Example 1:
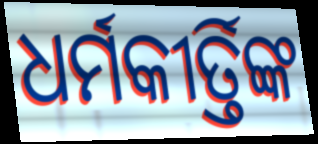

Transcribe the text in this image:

ଧର୍ମକୀର୍ତ୍ତିଙ୍କ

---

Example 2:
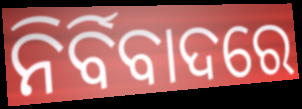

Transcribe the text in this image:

ନିର୍ବିବାଦରେ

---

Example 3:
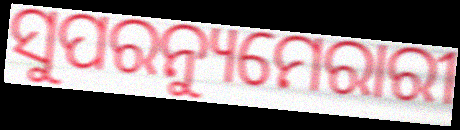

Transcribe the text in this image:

ସୁପରନ୍ୟୁମେରାରୀ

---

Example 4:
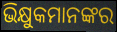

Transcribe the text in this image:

ଭିକ୍ଷୁକମାନଙ୍କର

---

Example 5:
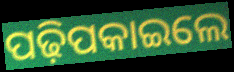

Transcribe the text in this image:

ପଢ଼ିପକାଇଲେ